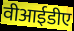
वीआईडीए